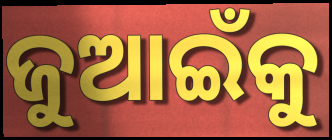
ଜୁଆଇଁକୁ